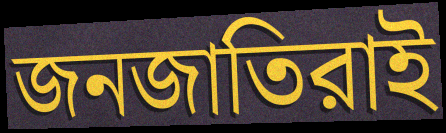
জনজাতিরাই